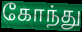
கோந்து